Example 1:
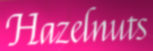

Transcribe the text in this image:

Hazelnuts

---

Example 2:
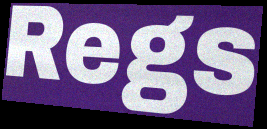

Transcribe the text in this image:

Regs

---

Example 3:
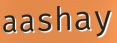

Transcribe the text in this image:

aashay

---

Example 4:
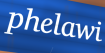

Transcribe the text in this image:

phelawi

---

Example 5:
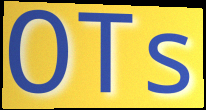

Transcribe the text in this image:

OTs